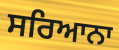
ਸਰਿਆਨਾ